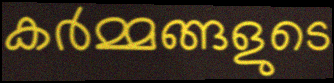
കർമ്മങ്ങളുടെ